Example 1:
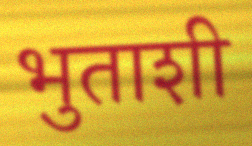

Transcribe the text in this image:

भुताशी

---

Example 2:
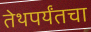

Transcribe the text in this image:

तेथपर्यंतचा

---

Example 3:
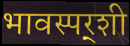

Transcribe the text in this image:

भावस्पर्शी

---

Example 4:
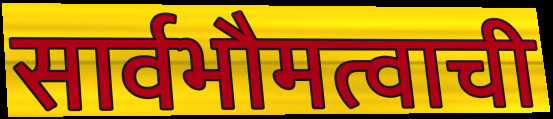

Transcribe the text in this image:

सार्वभौमत्वाची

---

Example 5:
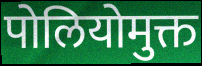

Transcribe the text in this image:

पोलियोमुक्त